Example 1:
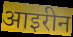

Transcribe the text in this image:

आइरीन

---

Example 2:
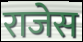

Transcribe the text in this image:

राजेस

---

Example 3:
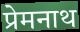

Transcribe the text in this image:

प्रेमनाथ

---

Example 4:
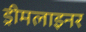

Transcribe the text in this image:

ड्रीमलाइनर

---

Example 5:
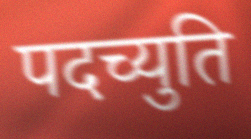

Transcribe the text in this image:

पदच्युति